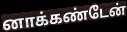
னாக்கண்டேன்